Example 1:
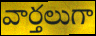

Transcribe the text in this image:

వార్తలుగా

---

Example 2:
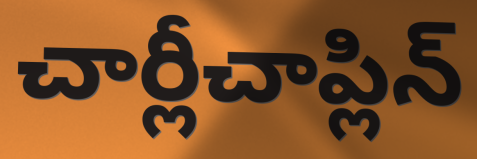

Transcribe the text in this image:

చార్లీచాప్లిన్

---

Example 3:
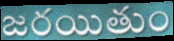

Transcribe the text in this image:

జరయితుం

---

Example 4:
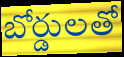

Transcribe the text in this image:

బోర్డులతో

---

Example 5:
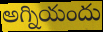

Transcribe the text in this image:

అగ్నియందు